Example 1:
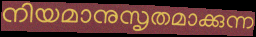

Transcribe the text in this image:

നിയമാനുസൃതമാക്കുന്ന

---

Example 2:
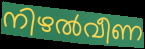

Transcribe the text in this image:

നിഴൽവീണ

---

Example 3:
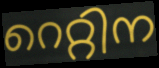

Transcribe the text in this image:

റെറ്റിന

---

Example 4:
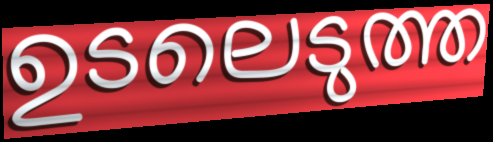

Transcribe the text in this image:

ഉടലെടുത്ത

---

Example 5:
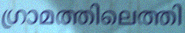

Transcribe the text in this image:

ഗ്രാമത്തിലെത്തി